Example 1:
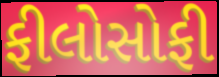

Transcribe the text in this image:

ફીલોસોફી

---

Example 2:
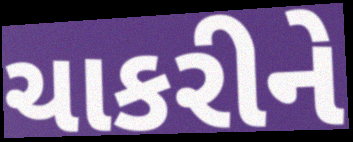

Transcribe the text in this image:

ચાકરીને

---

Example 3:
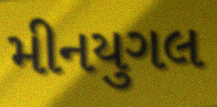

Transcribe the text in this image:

મીનયુગલ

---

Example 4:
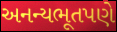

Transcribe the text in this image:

અનન્યભૂતપણે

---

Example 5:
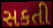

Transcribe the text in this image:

સકતી